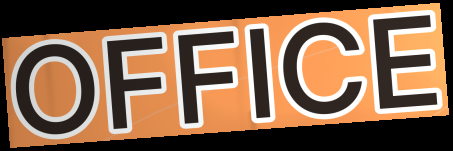
OFFICE